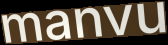
manvu